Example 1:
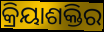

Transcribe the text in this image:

କ୍ରିୟାଶକ୍ତିର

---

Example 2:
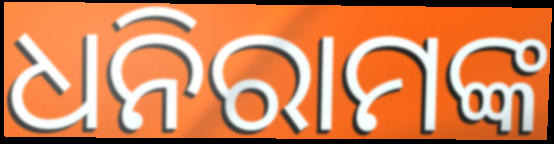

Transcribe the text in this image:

ଧନିରାମଙ୍କ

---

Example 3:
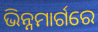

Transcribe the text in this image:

ଭିନ୍ନମାର୍ଗରେ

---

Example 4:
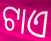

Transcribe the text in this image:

ଟାଏ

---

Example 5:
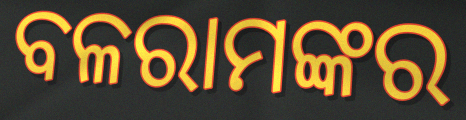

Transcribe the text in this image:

ବଳରାମଙ୍କର